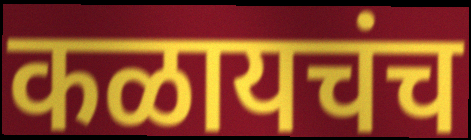
कळायचंच